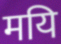
मयि